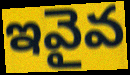
ఇవైవ